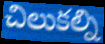
చిలుకల్ని